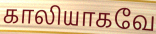
காலியாகவே